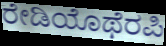
ರೇಡಿಯೊಥೆರಪಿ